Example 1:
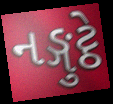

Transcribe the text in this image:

નઙ્ગુટ્ઠે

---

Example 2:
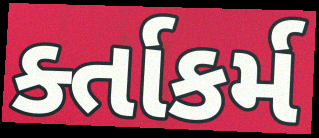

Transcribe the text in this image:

ર્ક્તાકર્મ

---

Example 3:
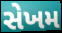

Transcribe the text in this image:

સેખમ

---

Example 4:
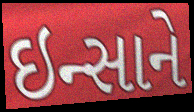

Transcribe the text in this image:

ઇન્સાને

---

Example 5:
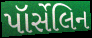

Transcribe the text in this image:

પૉર્સેલિન